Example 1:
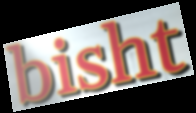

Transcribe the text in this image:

bisht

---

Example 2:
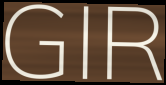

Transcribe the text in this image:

GIR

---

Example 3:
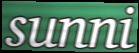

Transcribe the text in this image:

sunni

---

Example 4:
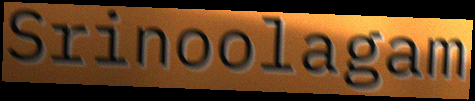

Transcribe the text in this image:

Srinoolagam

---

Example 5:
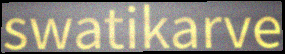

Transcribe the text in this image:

swatikarve